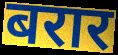
बरार